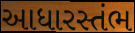
આધારસ્તંભ